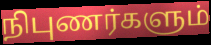
நிபுணர்களும்